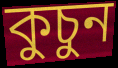
কুচুন